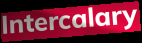
Intercalary